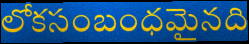
లోకసంబంధమైనది